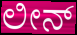
ಲೀನ್